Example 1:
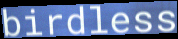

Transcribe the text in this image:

birdless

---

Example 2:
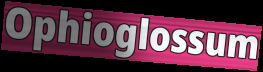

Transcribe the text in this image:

Ophioglossum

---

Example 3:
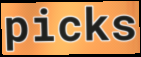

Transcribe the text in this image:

picks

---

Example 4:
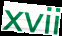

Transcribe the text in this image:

xvii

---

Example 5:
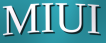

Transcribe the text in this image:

MIUI